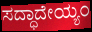
ಸದ್ಧಾದೇಯ್ಯಂ